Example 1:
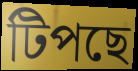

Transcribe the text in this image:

টিপছে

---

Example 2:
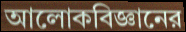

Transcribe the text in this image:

আলোকবিজ্ঞানের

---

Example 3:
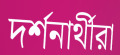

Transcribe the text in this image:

দর্শনার্থীরা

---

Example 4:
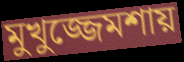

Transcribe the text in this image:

মুখুজ্জেমশায়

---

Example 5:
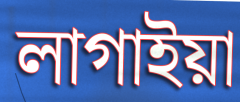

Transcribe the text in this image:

লাগাইয়া